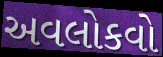
અવલોકવો